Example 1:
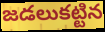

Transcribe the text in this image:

జడలుకట్టిన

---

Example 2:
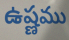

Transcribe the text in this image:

ఉష్ణము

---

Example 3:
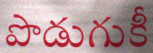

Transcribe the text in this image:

పొడుగుకీ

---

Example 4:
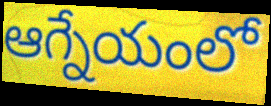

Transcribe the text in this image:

ఆగ్నేయంలో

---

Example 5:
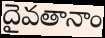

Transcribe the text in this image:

దైవతానాం